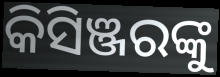
କିସିଞ୍ଜରଙ୍କୁ